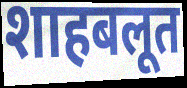
शाहबलूत